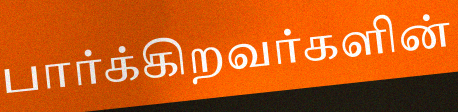
பார்க்கிறவர்களின்